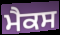
ਮੈਕਸ